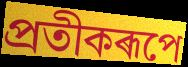
প্ৰতীকৰূপে